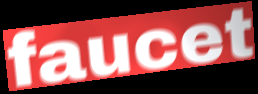
faucet